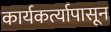
कार्यकर्त्यापासून